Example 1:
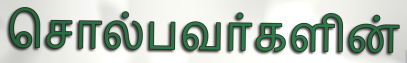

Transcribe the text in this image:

சொல்பவர்களின்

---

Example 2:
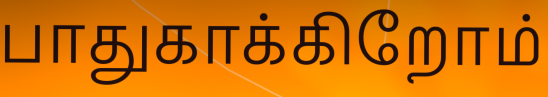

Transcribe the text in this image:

பாதுகாக்கிறோம்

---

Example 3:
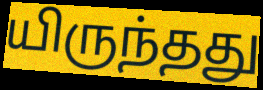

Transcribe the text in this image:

யிருந்தது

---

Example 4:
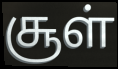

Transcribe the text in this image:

சூள்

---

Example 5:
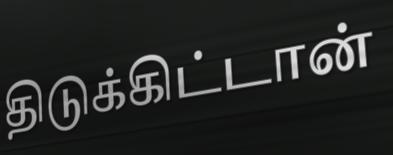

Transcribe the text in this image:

திடுக்கிட்டான்